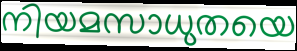
നിയമസാധുതയെ